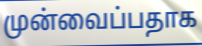
முன்வைப்பதாக